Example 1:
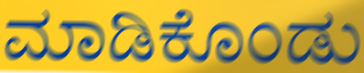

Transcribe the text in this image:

ಮಾಡಿಕೊಂಡು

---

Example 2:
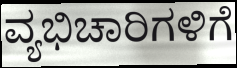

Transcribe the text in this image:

ವ್ಯಭಿಚಾರಿಗಳಿಗೆ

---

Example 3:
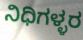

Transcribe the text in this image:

ನಿಧಿಗಳ್ಳರ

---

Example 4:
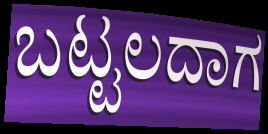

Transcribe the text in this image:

ಬಟ್ಟಲದಾಗ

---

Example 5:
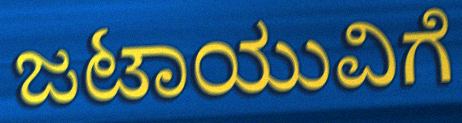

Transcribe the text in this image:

ಜಟಾಯುವಿಗೆ